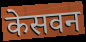
केसवन